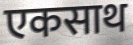
एकसाथ